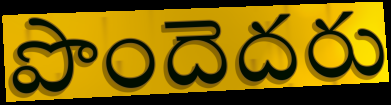
పొందెదరు